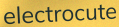
electrocute